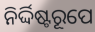
ନିର୍ଦ୍ଦିଷ୍ଟରୂପେ